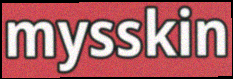
mysskin